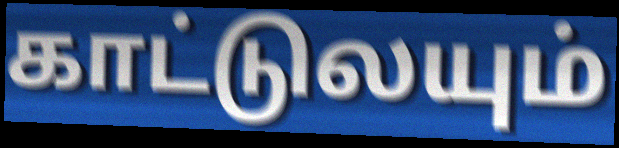
காட்டுலயும்